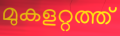
മുകളറ്റത്ത്